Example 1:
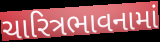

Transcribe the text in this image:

ચારિત્રભાવનામાં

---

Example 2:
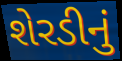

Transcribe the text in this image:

શેરડીનું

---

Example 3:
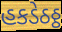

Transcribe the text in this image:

હકડેઠઠ્ઠ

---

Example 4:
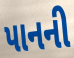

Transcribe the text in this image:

પાનની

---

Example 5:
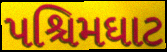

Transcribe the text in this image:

પશ્ચિમઘાટ